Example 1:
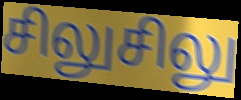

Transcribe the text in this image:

சிலுசிலு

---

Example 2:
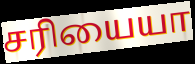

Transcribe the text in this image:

சரியையா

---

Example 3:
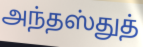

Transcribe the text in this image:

அந்தஸ்துத்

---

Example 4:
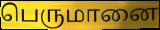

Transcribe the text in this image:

பெருமானை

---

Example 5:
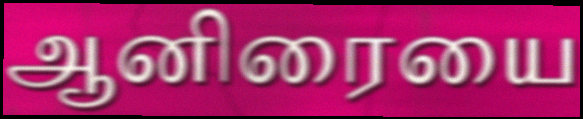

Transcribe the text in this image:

ஆனிரையை